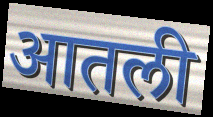
आतली